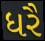
ધરૈ